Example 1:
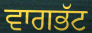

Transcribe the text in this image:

ਵਾਗਭੱਟ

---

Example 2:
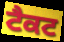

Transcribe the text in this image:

ਟੈਕਟ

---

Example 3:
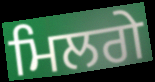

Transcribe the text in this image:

ਮਿਲਗੇ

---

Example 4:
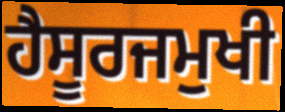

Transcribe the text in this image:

ਹੈਸੂਰਜਮੁਖੀ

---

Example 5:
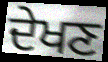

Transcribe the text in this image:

ਦੇਖਣ